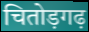
चितोड़गढ़